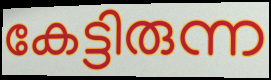
കേട്ടിരുന്ന